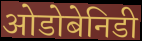
ओडोबेनिडी